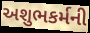
અશુભકર્મની